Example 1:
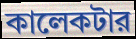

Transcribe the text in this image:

কালেকটার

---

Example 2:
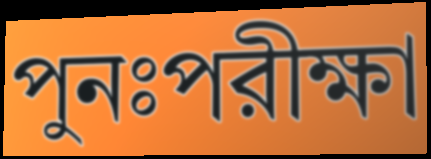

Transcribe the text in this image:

পুনঃপরীক্ষা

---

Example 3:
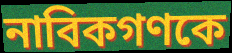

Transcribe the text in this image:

নাবিকগণকে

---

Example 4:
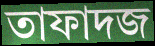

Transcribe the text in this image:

তাফাদজ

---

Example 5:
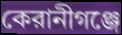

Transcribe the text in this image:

কেরানীগঞ্জে